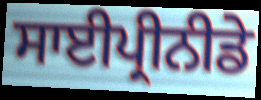
ਸਾਈਪ੍ਰੀਨੀਡੇ